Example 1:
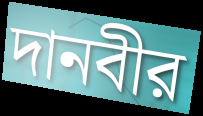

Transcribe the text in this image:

দানবীর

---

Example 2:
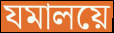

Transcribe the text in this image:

যমালয়ে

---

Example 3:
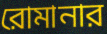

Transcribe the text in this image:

রোমানার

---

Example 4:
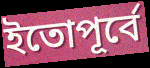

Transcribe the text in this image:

ইতোপূর্বে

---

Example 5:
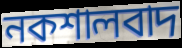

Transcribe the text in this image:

নকশালবাদ